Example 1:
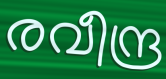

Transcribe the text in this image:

രവീന്ദ്ര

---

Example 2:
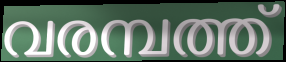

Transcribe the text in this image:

വരമ്പത്ത്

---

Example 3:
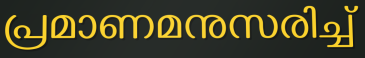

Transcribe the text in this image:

പ്രമാണമനുസരിച്ച്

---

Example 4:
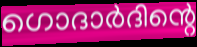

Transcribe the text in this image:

ഗൊദാർദിന്റെ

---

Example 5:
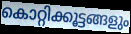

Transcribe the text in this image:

കൊറ്റിക്കൂട്ടങ്ങളും